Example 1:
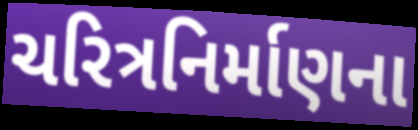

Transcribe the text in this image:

ચરિત્રનિર્માણના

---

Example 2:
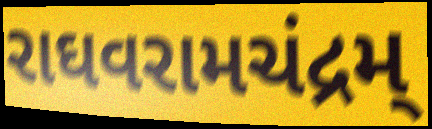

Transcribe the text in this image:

રાઘવરામચંદ્રમ્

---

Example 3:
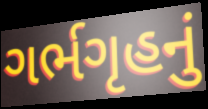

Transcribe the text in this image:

ગર્ભગૃહનું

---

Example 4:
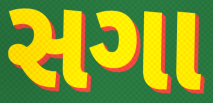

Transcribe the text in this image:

સગા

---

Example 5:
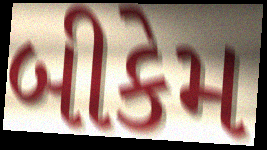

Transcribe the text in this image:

બીકેમ